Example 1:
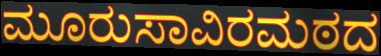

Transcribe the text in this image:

ಮೂರುಸಾವಿರಮಠದ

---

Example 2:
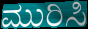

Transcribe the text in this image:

ಮುರಿಸಿ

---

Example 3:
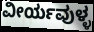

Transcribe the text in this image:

ವೀರ್ಯವುಳ್ಳ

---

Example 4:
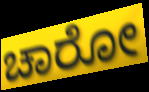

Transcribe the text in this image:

ಚಾರೋ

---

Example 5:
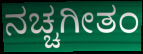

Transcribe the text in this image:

ನಚ್ಚಗೀತಂ